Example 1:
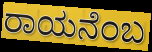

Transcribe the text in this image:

ರಾಯನೆಂಬ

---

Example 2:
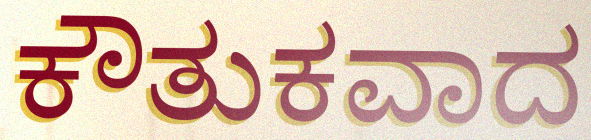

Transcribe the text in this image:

ಕೌತುಕವಾದ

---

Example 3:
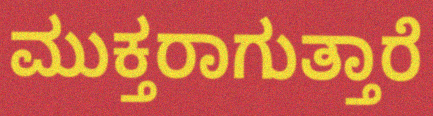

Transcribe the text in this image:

ಮುಕ್ತರಾಗುತ್ತಾರೆ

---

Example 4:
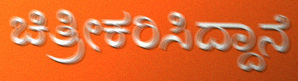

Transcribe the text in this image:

ಚಿತ್ರೀಕರಿಸಿದ್ದಾನೆ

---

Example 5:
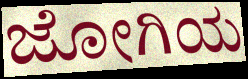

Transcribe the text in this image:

ಜೋಗಿಯ